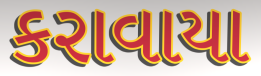
કરાવાયા